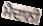
ਮੈਦਾਨੀ